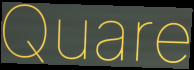
Quare